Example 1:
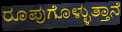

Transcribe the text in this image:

ರೂಪುಗೊಳ್ಳುತ್ತಾನೆ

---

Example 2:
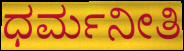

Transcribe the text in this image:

ಧರ್ಮನೀತಿ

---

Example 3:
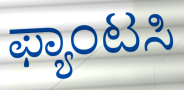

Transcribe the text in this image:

ಫ್ಯಾಂಟಸಿ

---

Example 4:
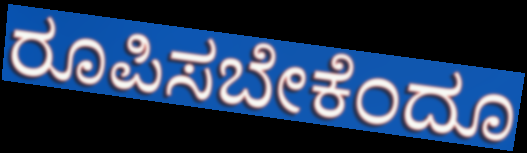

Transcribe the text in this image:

ರೂಪಿಸಬೇಕೆಂದೂ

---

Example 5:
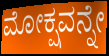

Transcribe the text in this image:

ಮೋಕ್ಷವನ್ನೇ